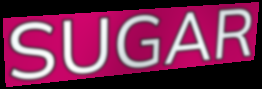
SUGAR